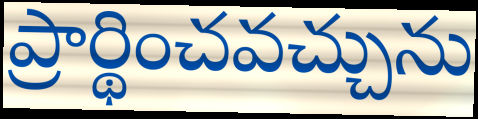
ప్రార్థించవచ్చును